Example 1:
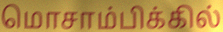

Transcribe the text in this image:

மொசாம்பிக்கில்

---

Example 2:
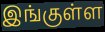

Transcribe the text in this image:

இங்குள்ள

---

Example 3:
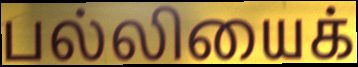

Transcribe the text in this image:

பல்லியைக்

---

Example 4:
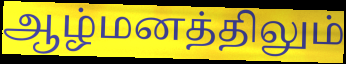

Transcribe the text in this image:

ஆழ்மனத்திலும்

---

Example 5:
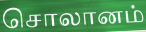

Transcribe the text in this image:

சொலானம்